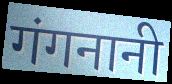
गंगनानी